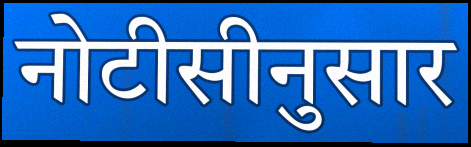
नोटीसीनुसार